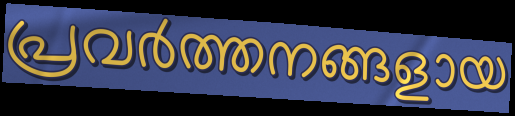
പ്രവർത്തനങ്ങളായ